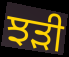
ਝੜੀ